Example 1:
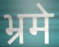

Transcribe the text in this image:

भ्रमे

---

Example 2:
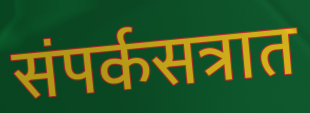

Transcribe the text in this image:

संपर्कसत्रात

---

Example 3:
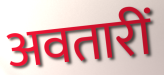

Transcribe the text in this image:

अवतारीं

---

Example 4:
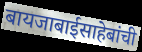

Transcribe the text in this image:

बायजाबाईसाहेबांची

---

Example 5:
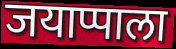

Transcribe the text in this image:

जयाप्पाला